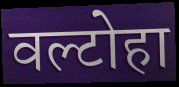
वल्टोहा